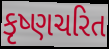
કૃષ્ણચરિત